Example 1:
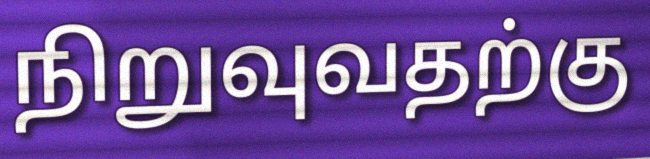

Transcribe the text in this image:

நிறுவுவதற்கு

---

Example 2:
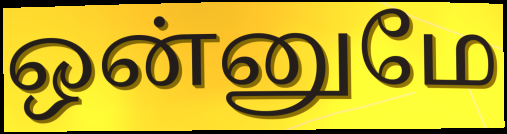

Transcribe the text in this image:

ஒன்னுமே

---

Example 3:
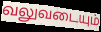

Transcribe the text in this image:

வலுவடையும்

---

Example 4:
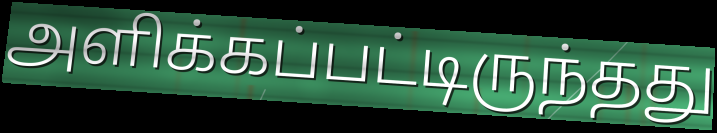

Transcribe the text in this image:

அளிக்கப்பட்டிருந்தது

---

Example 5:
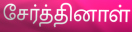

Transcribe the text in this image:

சேர்த்தினாள்